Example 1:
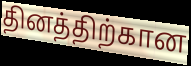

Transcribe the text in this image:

தினத்திற்கான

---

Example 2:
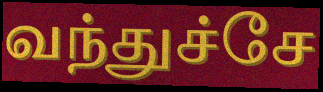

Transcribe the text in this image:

வந்துச்சே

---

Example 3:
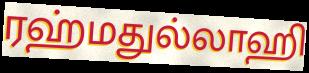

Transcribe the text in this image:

ரஹ்மதுல்லாஹி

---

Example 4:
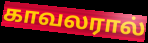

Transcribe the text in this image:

காவலரால்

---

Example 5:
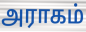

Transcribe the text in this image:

அராகம்